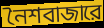
নৈশবাজারে